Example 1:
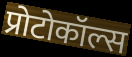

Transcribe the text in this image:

प्रोटोकॉल्स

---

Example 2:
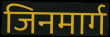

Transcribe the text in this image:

जिनमार्ग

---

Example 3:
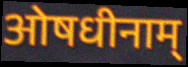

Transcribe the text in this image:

ओषधीनाम्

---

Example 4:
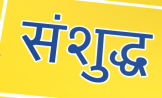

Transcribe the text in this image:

संशुद्ध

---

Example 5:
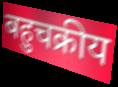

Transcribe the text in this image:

बहुचक्रीय